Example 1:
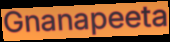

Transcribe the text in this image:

Gnanapeeta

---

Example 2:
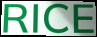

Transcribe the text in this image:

RICE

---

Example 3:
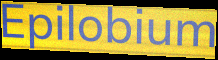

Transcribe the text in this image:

Epilobium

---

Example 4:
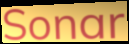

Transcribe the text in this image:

Sonar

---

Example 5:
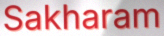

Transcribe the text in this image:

Sakharam